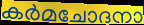
കർമചോദനാ